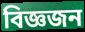
বিজ্ঞজন